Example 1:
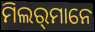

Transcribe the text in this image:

ମିଲର୍‌ମାନେ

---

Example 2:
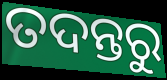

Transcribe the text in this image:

ତଦନ୍ତରୁ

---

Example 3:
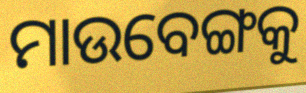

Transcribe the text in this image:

ମାଉବେଙ୍ଗକୁ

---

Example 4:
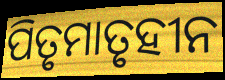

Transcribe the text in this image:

ପିତୃମାତୃହୀନ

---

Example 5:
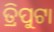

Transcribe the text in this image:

ତ୍ରିପୁଟା